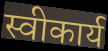
स्वीकार्य